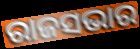
ରାଜସଭାର